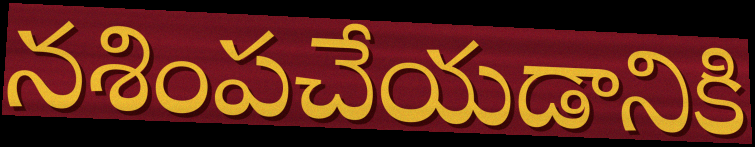
నశింపచేయడానికి